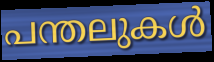
പന്തലുകൾ